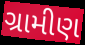
ગ્રામીણ